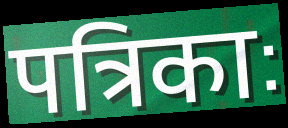
पत्रिकाः